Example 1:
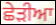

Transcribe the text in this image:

ਛੇੜੀਆ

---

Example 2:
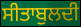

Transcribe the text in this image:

ਸੀਤਾਬੁਲਦੀ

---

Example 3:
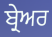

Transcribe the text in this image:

ਬ੍ਰੇਅਰ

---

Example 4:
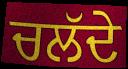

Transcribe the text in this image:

ਚਲੱਦੇ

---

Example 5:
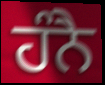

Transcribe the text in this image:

ਹੰਨੈ